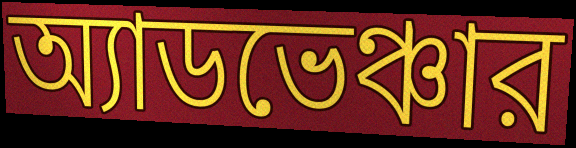
অ্যাডভেঞ্চার